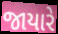
જાયારે